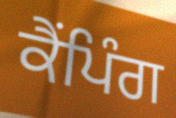
ਕੈਂਪਿੰਗ